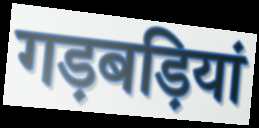
गड़बड़ियां